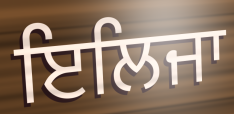
ਇਲਿਜਾ